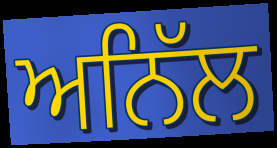
ਅਨਿੱਲ